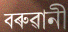
বৰুৱানী